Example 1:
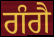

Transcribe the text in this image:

ਗੰਗੈ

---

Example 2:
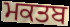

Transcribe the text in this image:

ਮਕਤਬ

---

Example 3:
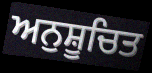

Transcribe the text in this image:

ਅਨੁਸ਼ੂਚਿਤ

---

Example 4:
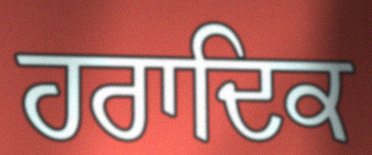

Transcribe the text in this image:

ਹਰਾਦਿਕ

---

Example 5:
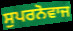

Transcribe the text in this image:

ਸੁਪਰਨੋਵਾਜ